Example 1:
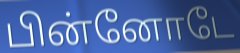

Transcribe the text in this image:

பின்னோடே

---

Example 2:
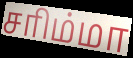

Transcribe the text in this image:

சரிம்மா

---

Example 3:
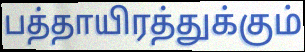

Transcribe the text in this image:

பத்தாயிரத்துக்கும்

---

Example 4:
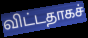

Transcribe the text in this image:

விட்டதாகச்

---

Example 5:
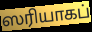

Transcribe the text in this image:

ஸரியாகப்